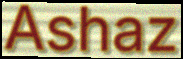
Ashaz